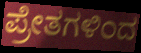
ಪ್ರೇತಗಳಿಂದ